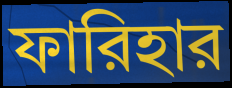
ফারিহার